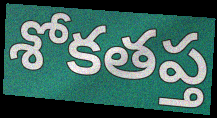
శోకతప్త